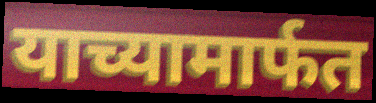
याच्यामार्फत